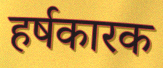
हर्षकारक